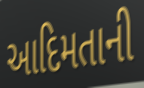
આદિમતાની